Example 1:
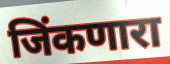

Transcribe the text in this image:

जिंकणारा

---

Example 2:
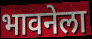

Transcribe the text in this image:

भावनेला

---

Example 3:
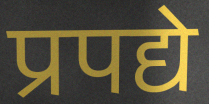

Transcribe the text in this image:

प्रपद्ये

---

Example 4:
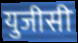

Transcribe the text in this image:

युजीसी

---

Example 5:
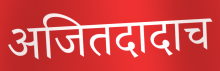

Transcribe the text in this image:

अजितदादाच